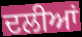
ਦਲੀਆਂ